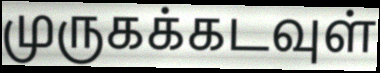
முருகக்கடவுள்